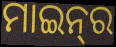
ମାଇନ୍‍ର